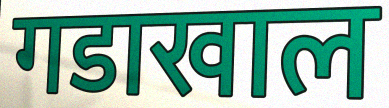
गडाखाल